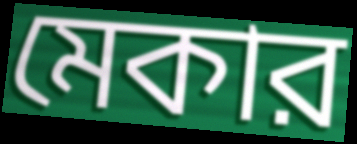
মেকার